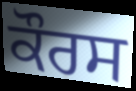
ਕੌਰਸ